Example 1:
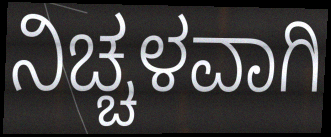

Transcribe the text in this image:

ನಿಚ್ಚಳವಾಗಿ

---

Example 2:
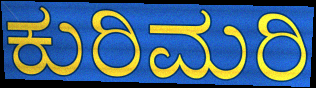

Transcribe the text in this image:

ಕುರಿಮರಿ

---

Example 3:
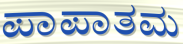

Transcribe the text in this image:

ಪಾಪಾತಮ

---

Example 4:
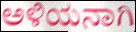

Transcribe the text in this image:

ಅಳಿಯನಾಗಿ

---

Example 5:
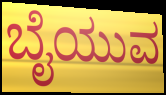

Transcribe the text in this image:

ಬೈಯುವ